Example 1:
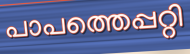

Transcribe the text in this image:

പാപത്തെപ്പറ്റി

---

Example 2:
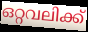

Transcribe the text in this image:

ഒറ്റവലിക്ക്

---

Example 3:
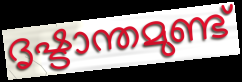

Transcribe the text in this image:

ദൃഷ്ടാന്തമുണ്ട്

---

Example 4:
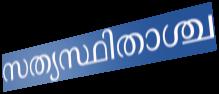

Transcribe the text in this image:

സത്യസ്ഥിതാശ്ച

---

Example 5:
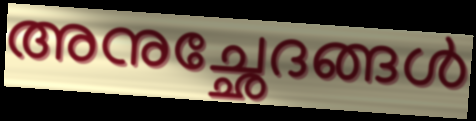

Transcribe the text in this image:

അനുച്ഛേദങ്ങൾ